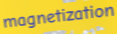
magnetization